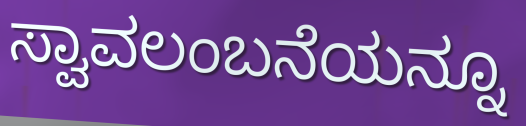
ಸ್ವಾವಲಂಬನೆಯನ್ನೂ